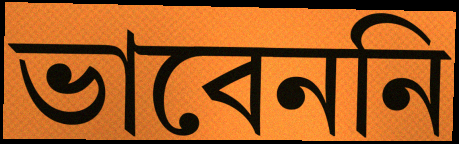
ভাবেননি